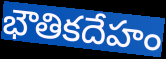
భౌతికదేహం